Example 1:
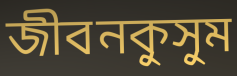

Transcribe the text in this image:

জীবনকুসুম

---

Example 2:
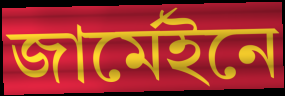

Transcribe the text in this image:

জার্মেইনে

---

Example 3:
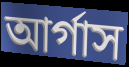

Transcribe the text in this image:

আর্গাস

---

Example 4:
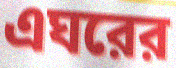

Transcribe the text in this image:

এঘরের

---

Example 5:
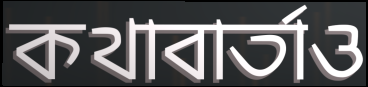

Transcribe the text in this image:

কথাবার্তাও